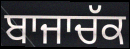
ਬਾਜਾਚੱਕ